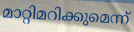
മാറ്റിമറിക്കുമെന്ന്